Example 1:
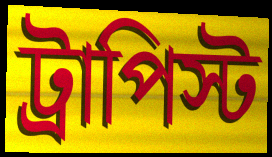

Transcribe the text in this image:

ট্রাপিস্ট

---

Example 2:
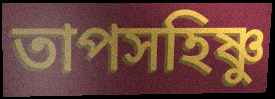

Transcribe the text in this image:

তাপসহিষ্ণু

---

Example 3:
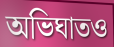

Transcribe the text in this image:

অভিঘাতও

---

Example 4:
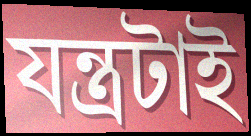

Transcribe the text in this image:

যন্ত্রটাই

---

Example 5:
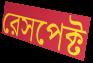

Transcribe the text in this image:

রেসপেক্ট